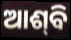
ଆଶ୍‍ବି